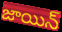
జాయిన్